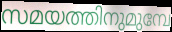
സമയത്തിനുമുമ്പേ